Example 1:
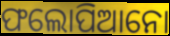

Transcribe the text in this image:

ଫଲୋପିଆନୋ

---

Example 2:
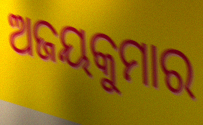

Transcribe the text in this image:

ଅଜୟକୁମାର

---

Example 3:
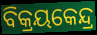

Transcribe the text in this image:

ବିକ୍ରୟକେନ୍ଦ୍ର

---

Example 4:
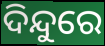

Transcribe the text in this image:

ଦିନ୍ଦୁରେ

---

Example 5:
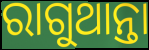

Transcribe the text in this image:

ରାଗୁଥାନ୍ତା